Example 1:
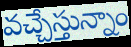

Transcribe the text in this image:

వచ్చేస్తున్నాం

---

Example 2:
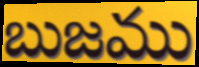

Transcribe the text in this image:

బుజము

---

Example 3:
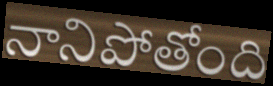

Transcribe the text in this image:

నానిపోతోంది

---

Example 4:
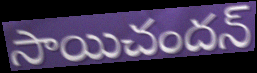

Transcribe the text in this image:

సాయిచందన్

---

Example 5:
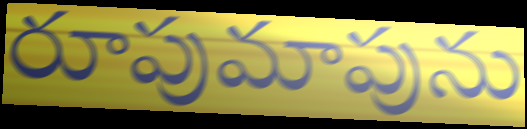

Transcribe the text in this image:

రూపుమాపును